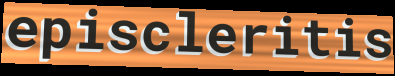
episcleritis